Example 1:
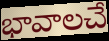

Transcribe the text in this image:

భావాలచే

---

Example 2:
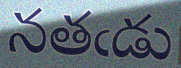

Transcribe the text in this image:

నతఁడు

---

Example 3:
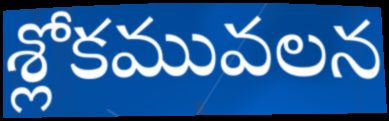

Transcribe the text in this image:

శ్లోకమువలన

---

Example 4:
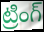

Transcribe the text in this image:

ట్రింగ్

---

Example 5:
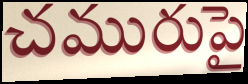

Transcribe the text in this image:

చమురుపై